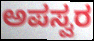
ಅಪಸ್ವರ